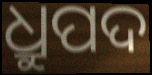
ଧ୍ରୁପଦ